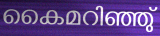
കൈമറിഞ്ഞു്